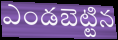
ఎండబెట్టిన